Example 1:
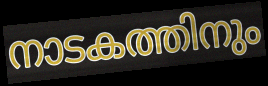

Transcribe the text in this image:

നാടകത്തിനും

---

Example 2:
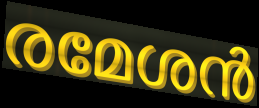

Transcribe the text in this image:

രമേശൻ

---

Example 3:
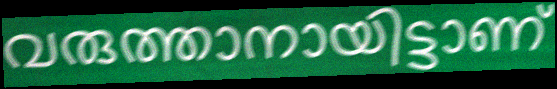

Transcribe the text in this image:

വരുത്താനായിട്ടാണ്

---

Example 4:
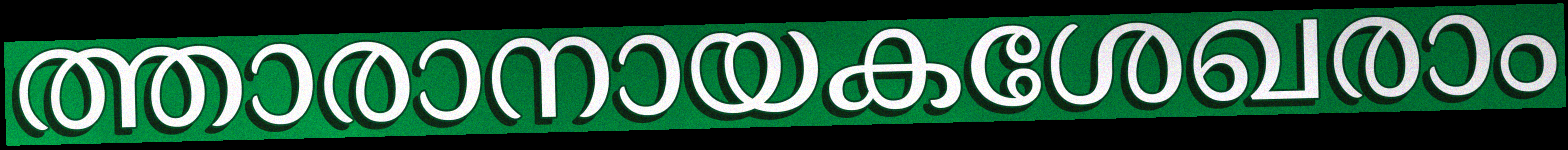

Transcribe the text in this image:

ത്താരാനായകശേഖരാം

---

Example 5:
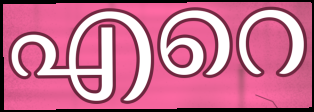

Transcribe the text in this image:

എറെ